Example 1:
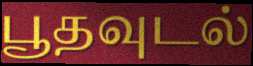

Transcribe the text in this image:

பூதவுடல்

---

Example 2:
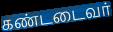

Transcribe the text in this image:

கண்டடைவர்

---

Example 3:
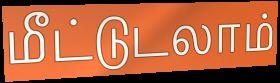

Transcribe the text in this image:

மீட்டுடலாம்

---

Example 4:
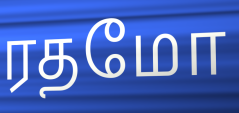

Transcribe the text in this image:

ரதமோ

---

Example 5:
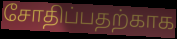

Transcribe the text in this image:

சோதிப்பதற்காக